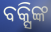
ବକ୍ସିଙ୍କ